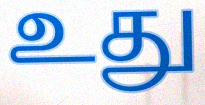
உது